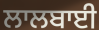
ਲਾਲਬਾਈ